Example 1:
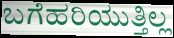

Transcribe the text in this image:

ಬಗೆಹರಿಯುತ್ತಿಲ್ಲ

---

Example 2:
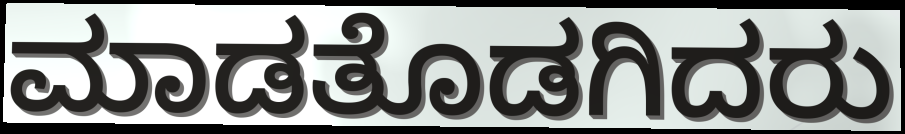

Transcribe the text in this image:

ಮಾಡತೊಡಗಿದರು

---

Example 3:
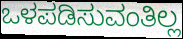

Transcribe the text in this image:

ಒಳಪಡಿಸುವಂತಿಲ್ಲ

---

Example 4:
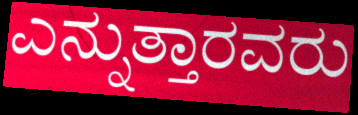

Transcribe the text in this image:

ಎನ್ನುತ್ತಾರವರು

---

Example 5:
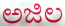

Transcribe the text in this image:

ಅಜಿಲ